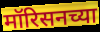
मॉरिसनच्या